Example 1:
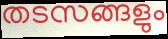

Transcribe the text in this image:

തടസങ്ങളും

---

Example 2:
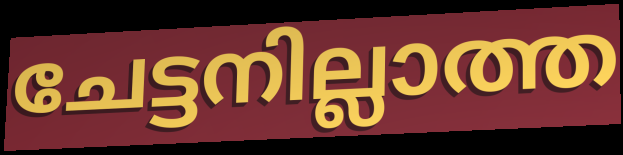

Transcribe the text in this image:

ചേട്ടനില്ലാത്ത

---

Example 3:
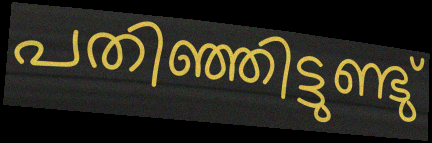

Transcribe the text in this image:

പതിഞ്ഞിട്ടുണ്ടു്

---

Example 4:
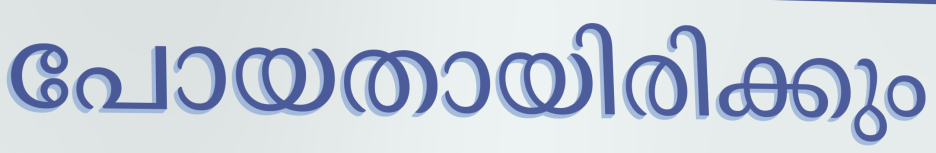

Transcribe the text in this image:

പോയതായിരിക്കും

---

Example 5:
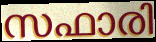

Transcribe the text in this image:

സഫാരി